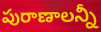
పురాణాలన్నీ